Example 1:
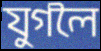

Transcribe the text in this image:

যুগলৈ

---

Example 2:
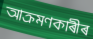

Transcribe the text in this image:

আক্ৰমণকাৰীৰ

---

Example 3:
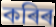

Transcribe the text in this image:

কৰিৰ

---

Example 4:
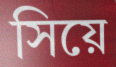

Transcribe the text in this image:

সিয়ে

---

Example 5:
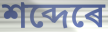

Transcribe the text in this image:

শব্দেৰে